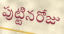
పుట్టినరోజు